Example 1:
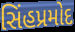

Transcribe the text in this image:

સિંહપ્રમોદ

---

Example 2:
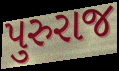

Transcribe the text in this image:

પુરુરાજ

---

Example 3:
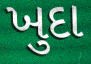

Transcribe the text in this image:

ખુદા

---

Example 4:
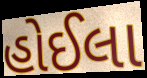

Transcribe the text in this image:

હોઈલા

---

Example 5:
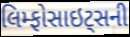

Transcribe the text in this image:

લિમ્ફોસાઇટ્સની